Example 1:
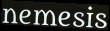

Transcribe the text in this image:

nemesis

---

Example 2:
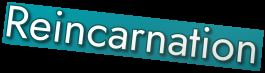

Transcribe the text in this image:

Reincarnation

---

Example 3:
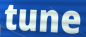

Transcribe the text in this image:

tune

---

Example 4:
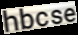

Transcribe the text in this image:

hbcse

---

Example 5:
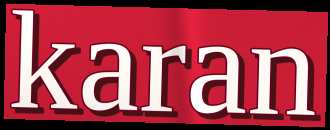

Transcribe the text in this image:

karan